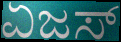
ಏಜಸ್